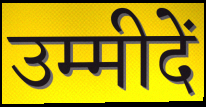
उम्मीदें